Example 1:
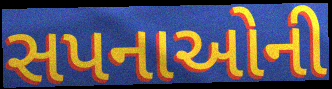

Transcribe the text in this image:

સપનાઓની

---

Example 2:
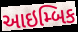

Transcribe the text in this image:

આઇમ્બિક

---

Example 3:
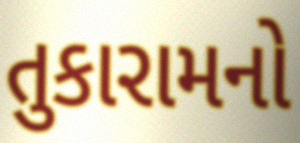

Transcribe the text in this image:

તુકારામનો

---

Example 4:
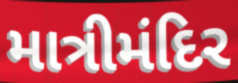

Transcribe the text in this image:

માત્રીમંદિર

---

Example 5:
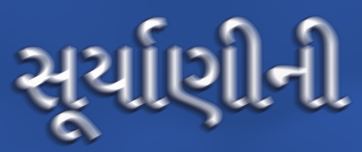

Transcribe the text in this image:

સૂર્યાણીની